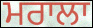
ਮਰਾਲਾ